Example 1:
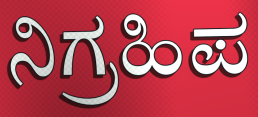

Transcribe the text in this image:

ನಿಗ್ರಹಿಪ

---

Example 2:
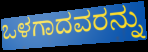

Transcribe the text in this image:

ಒಳಗಾದವರನ್ನು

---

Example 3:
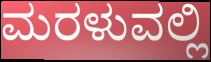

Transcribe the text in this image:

ಮರಳುವಲ್ಲಿ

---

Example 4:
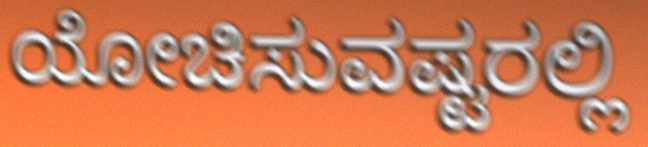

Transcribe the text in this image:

ಯೋಚಿಸುವಷ್ಟರಲ್ಲಿ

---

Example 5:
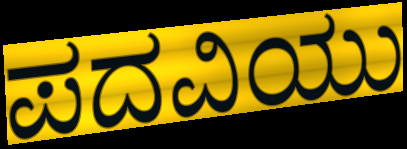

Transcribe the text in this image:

ಪದವಿಯು